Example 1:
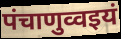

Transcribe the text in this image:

पंचाणुव्वइयं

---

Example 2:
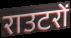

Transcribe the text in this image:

राउटरों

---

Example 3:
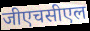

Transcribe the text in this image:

जीएचसीएल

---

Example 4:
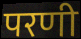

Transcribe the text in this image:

परणी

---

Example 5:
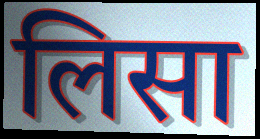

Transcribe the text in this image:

लिसा